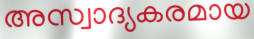
അസ്വാദ്യകരമായ